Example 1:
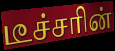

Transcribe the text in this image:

டீச்சரின்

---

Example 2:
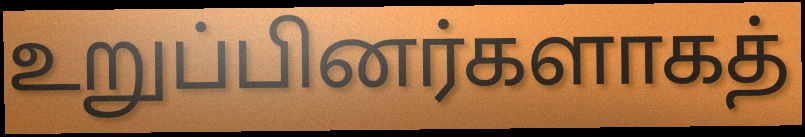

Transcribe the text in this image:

உறுப்பினர்களாகத்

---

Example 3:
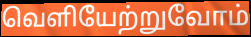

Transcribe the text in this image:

வெளியேற்றுவோம்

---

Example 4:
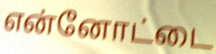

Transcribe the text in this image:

என்னோட்டை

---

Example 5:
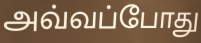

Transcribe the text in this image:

அவ்வப்போது